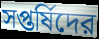
সপ্তর্ষিদের